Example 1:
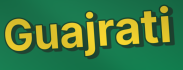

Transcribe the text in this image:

Guajrati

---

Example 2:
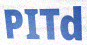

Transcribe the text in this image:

PITd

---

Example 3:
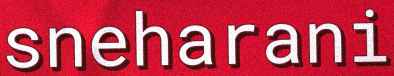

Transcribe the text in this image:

sneharani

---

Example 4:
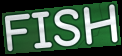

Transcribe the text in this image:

FISH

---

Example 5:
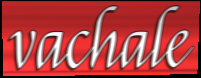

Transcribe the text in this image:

vachale